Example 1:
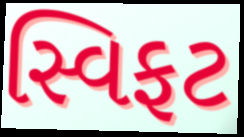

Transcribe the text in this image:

સ્વિફટ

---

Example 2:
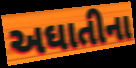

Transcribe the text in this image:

અઘાતીના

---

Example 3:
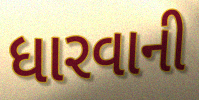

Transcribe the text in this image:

ધારવાની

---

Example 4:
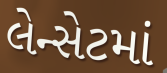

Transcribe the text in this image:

લેન્સેટમાં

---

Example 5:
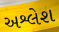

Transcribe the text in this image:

અશ્લેશ